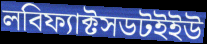
লবিফ্যাক্টসডটইইউ